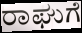
ರಾಘುಗೆ